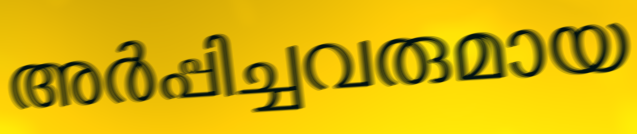
അർപ്പിച്ചവരുമായ